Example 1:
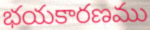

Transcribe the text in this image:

భయకారణము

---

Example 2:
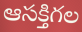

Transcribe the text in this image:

ఆసక్తిగల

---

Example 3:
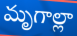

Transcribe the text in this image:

మృగాల్లా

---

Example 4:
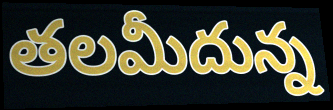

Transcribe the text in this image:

తలమీదున్న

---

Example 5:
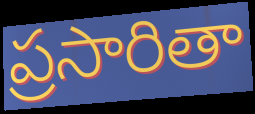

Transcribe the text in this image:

ప్రసారితా